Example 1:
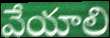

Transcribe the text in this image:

వేయాలి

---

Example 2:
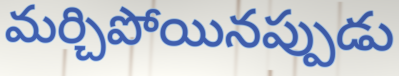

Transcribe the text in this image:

మర్చిపోయినప్పుడు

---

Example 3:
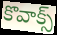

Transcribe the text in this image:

కొవాక్స్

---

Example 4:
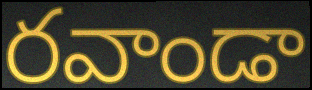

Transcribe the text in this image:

రవాండా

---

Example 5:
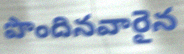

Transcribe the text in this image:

పొందినవారైన